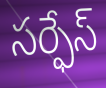
సర్ఫేస్